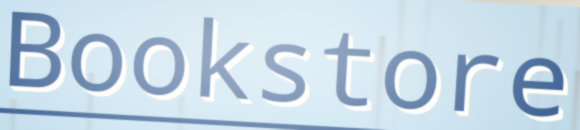
Bookstore